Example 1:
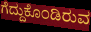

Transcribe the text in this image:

ಗೆದ್ದುಕೊಂಡಿರುವ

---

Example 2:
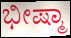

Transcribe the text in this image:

ಭೀಷ್ಮಾ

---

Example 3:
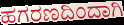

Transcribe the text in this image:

ಹಗರಣದಿಂದಾಗಿ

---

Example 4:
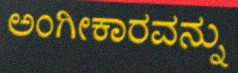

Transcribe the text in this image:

ಅಂಗೀಕಾರವನ್ನು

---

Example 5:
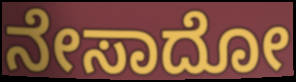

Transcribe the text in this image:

ನೇಸಾದೋ